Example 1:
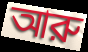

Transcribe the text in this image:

আৰু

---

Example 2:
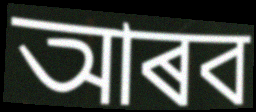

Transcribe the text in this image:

আৰব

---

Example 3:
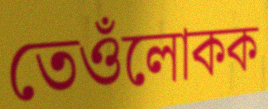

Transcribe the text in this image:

তেওঁলোকক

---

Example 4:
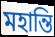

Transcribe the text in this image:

মহান্তি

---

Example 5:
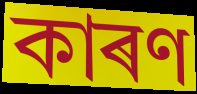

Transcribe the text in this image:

কাৰণ